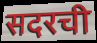
सदरची